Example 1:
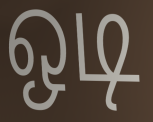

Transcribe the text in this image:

ஒடி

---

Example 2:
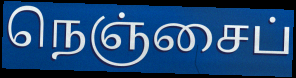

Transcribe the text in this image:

நெஞ்சைப்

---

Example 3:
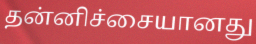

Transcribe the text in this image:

தன்னிச்சையானது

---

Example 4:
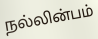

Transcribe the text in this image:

நல்லின்பம்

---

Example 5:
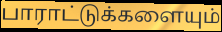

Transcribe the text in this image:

பாராட்டுக்களையும்